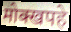
मोक्खपहे